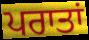
ਪਰਾਤਾਂ